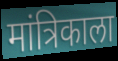
मांत्रिकाला